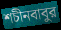
শচীনবাবুর